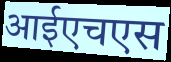
आईएचएस